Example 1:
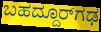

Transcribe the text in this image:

ಬಹದ್ದೂರ್‌ಗಢ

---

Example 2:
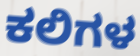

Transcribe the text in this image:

ಕಲಿಗಳ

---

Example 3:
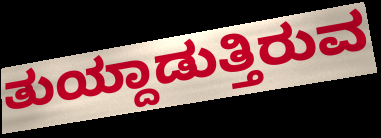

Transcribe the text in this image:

ತುಯ್ದಾಡುತ್ತಿರುವ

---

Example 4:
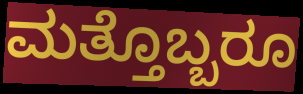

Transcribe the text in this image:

ಮತ್ತೊಬ್ಬರೂ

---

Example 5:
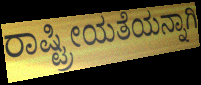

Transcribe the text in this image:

ರಾಷ್ಟ್ರೀಯತೆಯನ್ನಾಗಿ